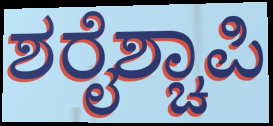
ಶರೈಶ್ಚಾಪಿ